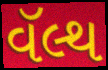
વૅલ્થ